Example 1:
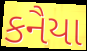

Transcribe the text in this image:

કનૈયા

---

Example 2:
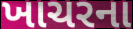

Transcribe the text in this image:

ખાચરના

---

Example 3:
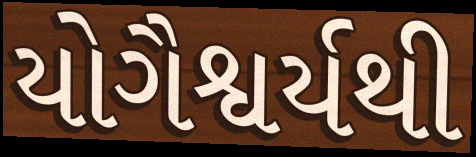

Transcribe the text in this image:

યોગૈશ્વર્યથી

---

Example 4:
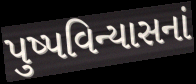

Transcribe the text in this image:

પુષ્પવિન્યાસનાં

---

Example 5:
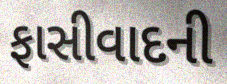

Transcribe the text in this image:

ફાસીવાદની